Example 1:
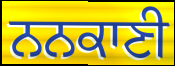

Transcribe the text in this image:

ਨਨਕਾਣੀ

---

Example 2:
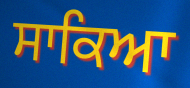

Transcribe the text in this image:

ਸਾਕਿਆ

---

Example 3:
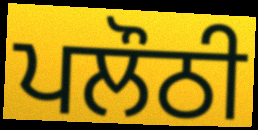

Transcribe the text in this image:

ਪਲੌਠੀ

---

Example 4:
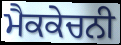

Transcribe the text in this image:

ਮੈਕਕੇਚਨੀ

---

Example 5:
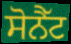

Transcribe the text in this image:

ਸੋਨੈੱਟ